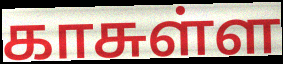
காசுள்ள